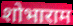
शोभाराम